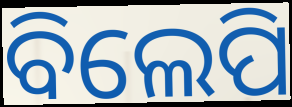
ବିଲେପି